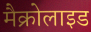
मैक्रोलाइड